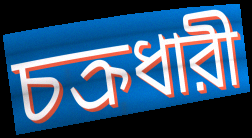
চক্রধারী